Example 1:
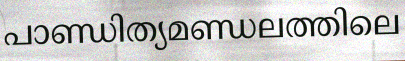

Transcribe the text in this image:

പാണ്ഡിത്യമണ്ഡലത്തിലെ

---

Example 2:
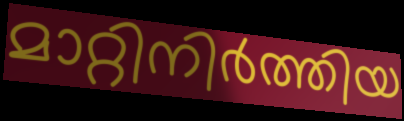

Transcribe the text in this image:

മാറ്റിനിർത്തിയ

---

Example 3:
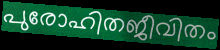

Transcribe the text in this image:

പുരോഹിതജീവിതം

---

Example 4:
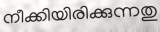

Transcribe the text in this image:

നീക്കിയിരിക്കുന്നതു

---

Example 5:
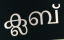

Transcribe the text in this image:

ക്ലബ്